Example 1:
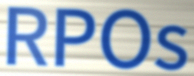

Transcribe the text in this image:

RPOs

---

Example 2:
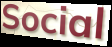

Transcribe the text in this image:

Social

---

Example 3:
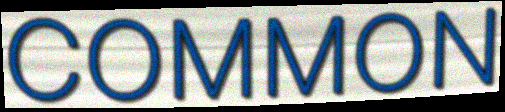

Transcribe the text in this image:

COMMON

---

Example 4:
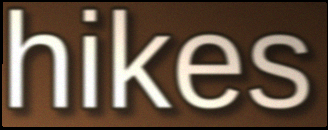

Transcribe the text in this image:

hikes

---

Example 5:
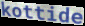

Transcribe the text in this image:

kottide